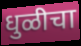
धुळीचा